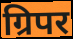
ग्रिपर